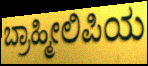
ಬ್ರಾಹ್ಮೀಲಿಪಿಯ